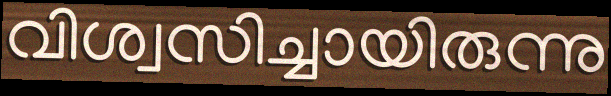
വിശ്വസിച്ചായിരുന്നു